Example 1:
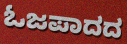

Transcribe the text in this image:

ಓಜಪಾದದ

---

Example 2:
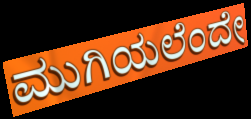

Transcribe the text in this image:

ಮುಗಿಯಲೆಂದೇ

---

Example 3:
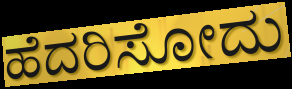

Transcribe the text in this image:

ಹೆದರಿಸೋದು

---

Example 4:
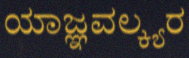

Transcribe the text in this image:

ಯಾಜ್ಞವಲ್ಕ್ಯರ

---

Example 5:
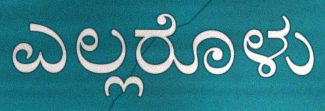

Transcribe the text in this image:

ಎಲ್ಲರೊಳು